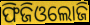
ଫିଜିଓଲୋଜି